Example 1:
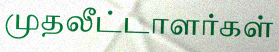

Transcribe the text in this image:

முதலீட்டாளர்கள்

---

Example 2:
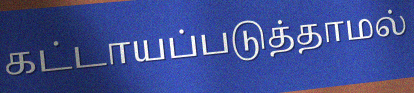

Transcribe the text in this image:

கட்டாயப்படுத்தாமல்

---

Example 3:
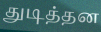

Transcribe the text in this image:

துடித்தன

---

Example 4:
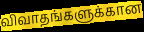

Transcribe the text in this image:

விவாதங்களுக்கான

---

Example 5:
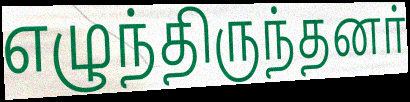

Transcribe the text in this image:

எழுந்திருந்தனர்